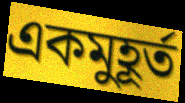
একমুহূর্ত